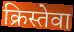
क्रिस्तेवा